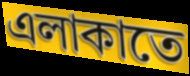
এলাকাতে